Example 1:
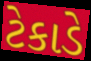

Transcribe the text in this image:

ટેકાડે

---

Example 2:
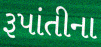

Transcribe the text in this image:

રૂપાંતીના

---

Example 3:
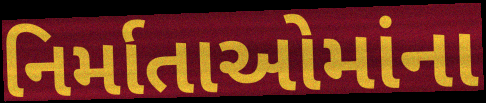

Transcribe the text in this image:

નિર્માતાઓમાંના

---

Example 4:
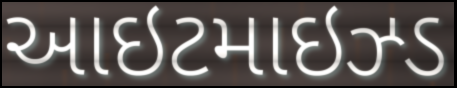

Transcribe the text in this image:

આઇટમાઇઝ્ડ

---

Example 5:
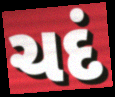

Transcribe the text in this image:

ચદં